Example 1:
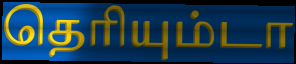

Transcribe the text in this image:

தெரியும்டா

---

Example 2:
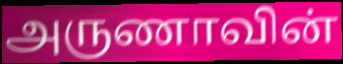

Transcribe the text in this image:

அருணாவின்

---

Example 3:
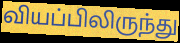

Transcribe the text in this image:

வியப்பிலிருந்து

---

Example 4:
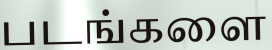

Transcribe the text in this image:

படங்களை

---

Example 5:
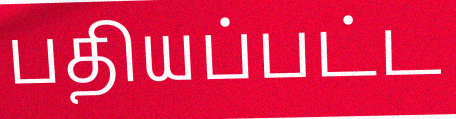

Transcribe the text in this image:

பதியப்பட்ட